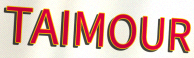
TAIMOUR